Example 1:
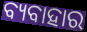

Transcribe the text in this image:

ବ୍ୟବାହାର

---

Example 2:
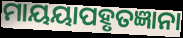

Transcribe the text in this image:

ମାୟୟାପହୃତଜ୍ଞାନା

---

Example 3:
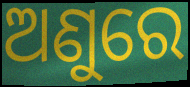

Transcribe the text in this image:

ଅଣୁରେ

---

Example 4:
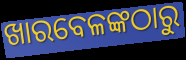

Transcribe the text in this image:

ଖାରବେଳଙ୍କଠାରୁ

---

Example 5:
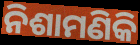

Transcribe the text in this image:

ନିଶାମଣିକି